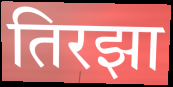
तिरझा